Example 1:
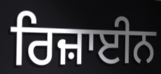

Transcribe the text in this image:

ਰਿਜ਼ਾਈਨ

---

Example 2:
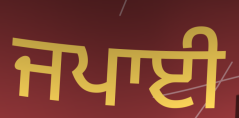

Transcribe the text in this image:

ਜਪਾਈ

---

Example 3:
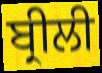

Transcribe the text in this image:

ਬ੍ਰੀਲੀ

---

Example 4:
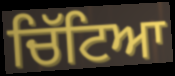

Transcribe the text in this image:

ਚਿੱਟਿਆ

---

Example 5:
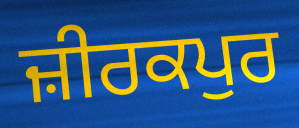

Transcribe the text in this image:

ਜ਼ੀਰਕਪੁਰ